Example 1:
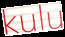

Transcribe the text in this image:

kulu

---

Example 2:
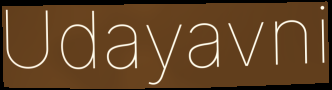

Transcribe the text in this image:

Udayavni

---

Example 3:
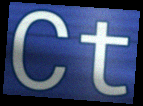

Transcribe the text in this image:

Ct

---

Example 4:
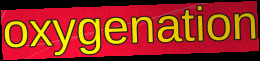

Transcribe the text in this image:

oxygenation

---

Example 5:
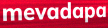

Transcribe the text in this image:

mevadapa